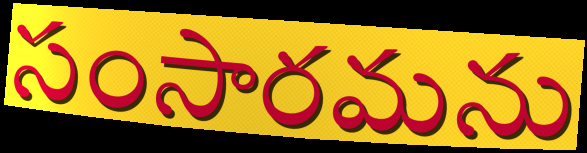
సంసారమను